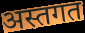
अस्तगत